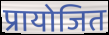
प्रायोजित